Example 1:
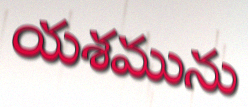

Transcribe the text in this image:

యశమును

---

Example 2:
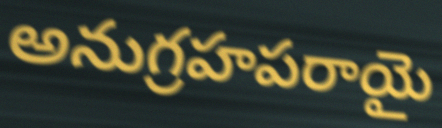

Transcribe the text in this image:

అనుగ్రహపరాయై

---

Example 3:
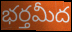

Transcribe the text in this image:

భర్తమీద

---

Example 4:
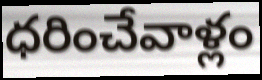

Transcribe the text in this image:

ధరించేవాళ్లం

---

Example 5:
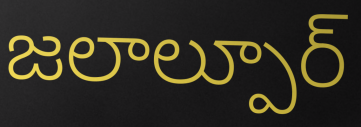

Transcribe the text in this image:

జలాల్పూర్